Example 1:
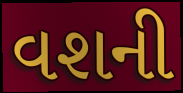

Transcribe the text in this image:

વશની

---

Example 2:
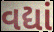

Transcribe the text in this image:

વદ્યાં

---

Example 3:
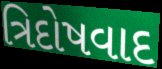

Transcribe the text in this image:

ત્રિદોષવાદ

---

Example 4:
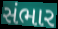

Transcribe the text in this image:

સંભાર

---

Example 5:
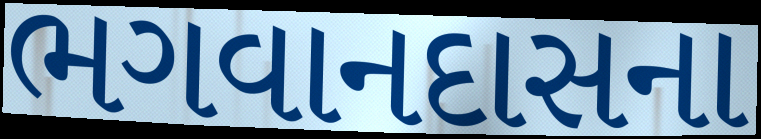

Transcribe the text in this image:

ભગવાનદાસના